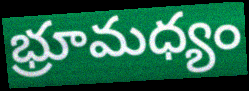
భ్రూమధ్యం